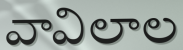
వావిలాల